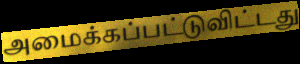
அமைக்கப்பட்டுவிட்டது